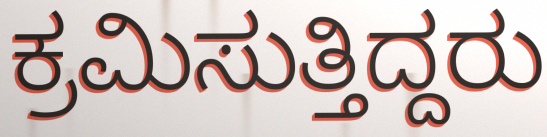
ಕ್ರಮಿಸುತ್ತಿದ್ದರು